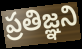
ప్రతిజ్ఞని